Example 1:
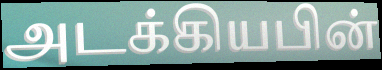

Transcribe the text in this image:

அடக்கியபின்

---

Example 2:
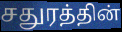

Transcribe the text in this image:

சதுரத்தின்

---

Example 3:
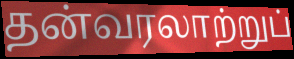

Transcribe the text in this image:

தன்வரலாற்றுப்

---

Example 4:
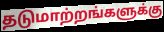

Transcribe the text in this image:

தடுமாற்றங்களுக்கு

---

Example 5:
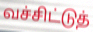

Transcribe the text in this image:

வச்சிட்டுத்